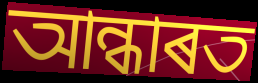
আন্ধাৰত